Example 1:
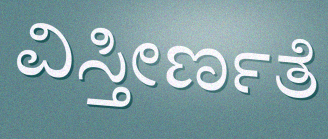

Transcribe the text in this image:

ವಿಸ್ತೀರ್ಣತೆ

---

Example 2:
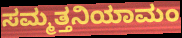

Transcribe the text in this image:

ಸಮ್ಮತ್ತನಿಯಾಮಂ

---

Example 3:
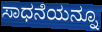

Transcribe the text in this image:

ಸಾಧನೆಯನ್ನೂ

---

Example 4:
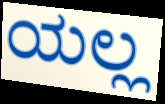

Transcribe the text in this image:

ಯಲ್ಲ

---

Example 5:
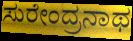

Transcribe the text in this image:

ಸುರೇಂದ್ರನಾಥ